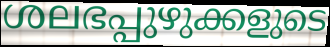
ശലഭപ്പുഴുക്കളുടെ